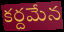
కర్దమేన